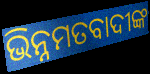
ଭିନ୍ନମତବାଦୀଙ୍କ